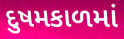
દુષમકાળમાં